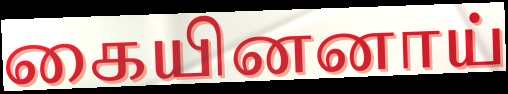
கையினனாய்